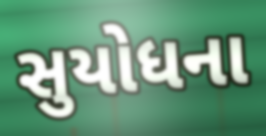
સુયોધના